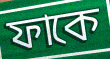
ফাকে